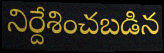
నిర్దేశించబడిన